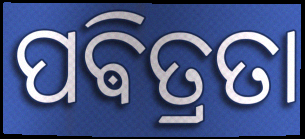
ପଵିତ୍ରତା